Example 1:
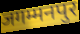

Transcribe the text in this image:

जगम्मनपुर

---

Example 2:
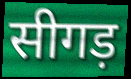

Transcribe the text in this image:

सीगड़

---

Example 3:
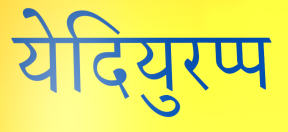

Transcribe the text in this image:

येदियुरप्प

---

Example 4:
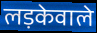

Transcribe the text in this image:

लड़केवाले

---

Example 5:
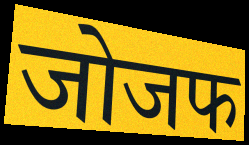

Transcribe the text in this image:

जोजफ